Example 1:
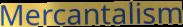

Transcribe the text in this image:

Mercantalism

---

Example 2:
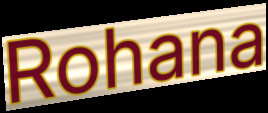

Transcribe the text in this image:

Rohana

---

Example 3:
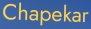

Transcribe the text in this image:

Chapekar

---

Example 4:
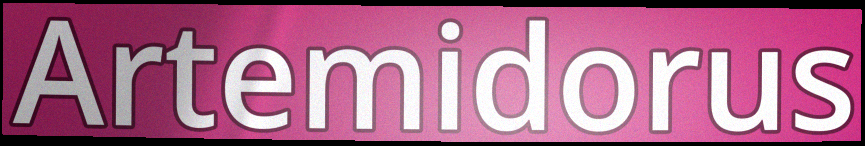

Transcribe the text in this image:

Artemidorus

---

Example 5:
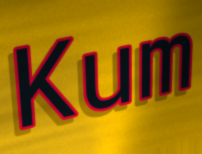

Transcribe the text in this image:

Kum